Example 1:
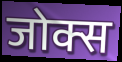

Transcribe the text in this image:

जोक्स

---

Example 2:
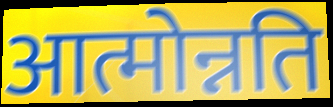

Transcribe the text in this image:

आत्मोन्नति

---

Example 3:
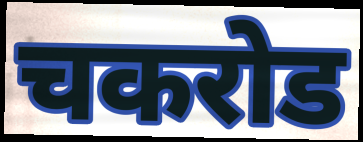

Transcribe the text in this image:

चकरोड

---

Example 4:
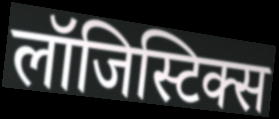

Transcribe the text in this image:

लॉजिस्टिक्स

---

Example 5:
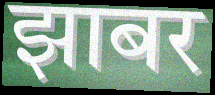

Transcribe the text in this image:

झाबर